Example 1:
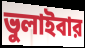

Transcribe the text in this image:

ভুলাইবার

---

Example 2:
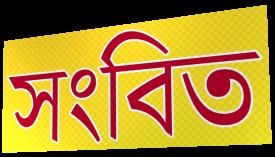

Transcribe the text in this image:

সংবিত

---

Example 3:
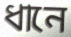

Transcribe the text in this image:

ধানে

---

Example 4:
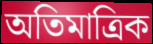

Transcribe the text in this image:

অতিমাত্রিক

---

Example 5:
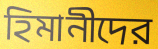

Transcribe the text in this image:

হিমানীদের